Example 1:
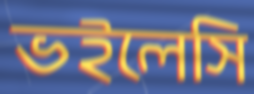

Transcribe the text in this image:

ভইলেসি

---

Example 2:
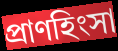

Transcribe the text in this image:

প্রাণহিংসা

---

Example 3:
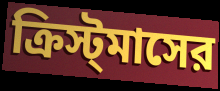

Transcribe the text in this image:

ক্রিস্ট্‌মাসের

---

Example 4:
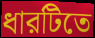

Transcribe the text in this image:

ধারটিতে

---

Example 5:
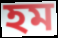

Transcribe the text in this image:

হম